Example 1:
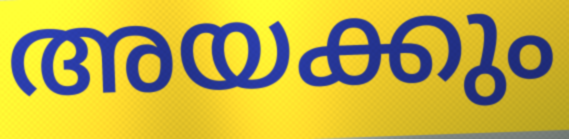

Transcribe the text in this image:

അയക്കും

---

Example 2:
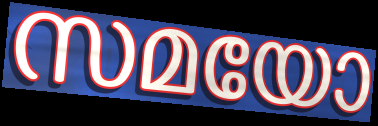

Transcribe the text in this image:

സമയോ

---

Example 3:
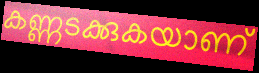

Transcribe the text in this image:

കണ്ണടക്കുകയാണ്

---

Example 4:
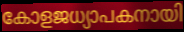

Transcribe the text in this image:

കോളജധ്യാപകനായി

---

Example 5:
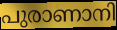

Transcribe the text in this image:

പുരാണാനി